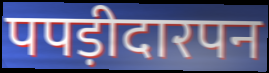
पपड़ीदारपन